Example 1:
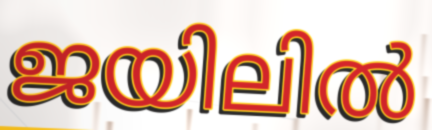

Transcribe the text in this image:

ജയിലിൽ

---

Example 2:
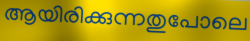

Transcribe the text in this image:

ആയിരിക്കുന്നതുപോലെ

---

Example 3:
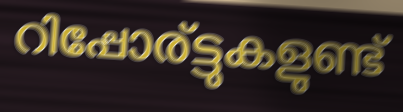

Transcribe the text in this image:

റിപ്പോര്ട്ടുകളുണ്ട്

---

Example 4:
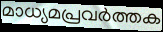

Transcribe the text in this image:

മാധ്യമപ്രവർത്തക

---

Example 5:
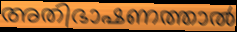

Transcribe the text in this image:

അതിഭാഷണത്താൽ